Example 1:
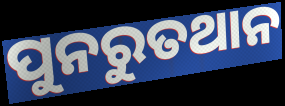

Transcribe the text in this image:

ପୁନରୁତଥାନ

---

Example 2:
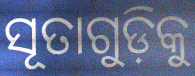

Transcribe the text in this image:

ସୂତାଗୁଡ଼ିକୁ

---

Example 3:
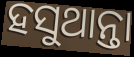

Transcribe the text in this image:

ହସୁଥାନ୍ତା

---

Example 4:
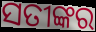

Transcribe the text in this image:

ସତୀଙ୍କର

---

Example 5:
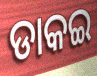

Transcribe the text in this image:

ଡାକଇ